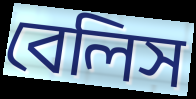
বেলিস